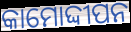
କାମୋଦ୍ଦୀପନ